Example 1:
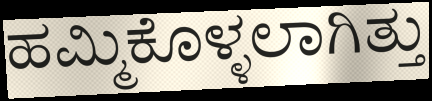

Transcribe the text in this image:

ಹಮ್ಮಿಕೊಳ್ಳಲಾಗಿತ್ತು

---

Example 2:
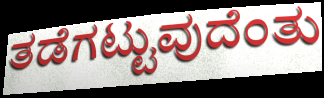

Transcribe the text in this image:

ತಡೆಗಟ್ಟುವುದೆಂತು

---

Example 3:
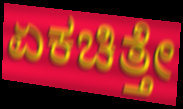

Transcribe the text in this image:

ಏಕಚಿತ್ತೇ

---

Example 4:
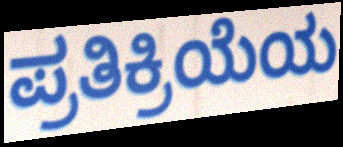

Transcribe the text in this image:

ಪ್ರತಿಕ್ರಿಯೆಯ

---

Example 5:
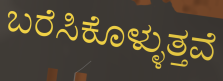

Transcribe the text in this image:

ಬರೆಸಿಕೊಳ್ಳುತ್ತವೆ